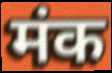
मंक